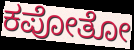
ಕಪೋತೋ